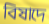
বিষাদে